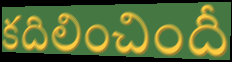
కదిలించిందీ